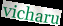
vicharu